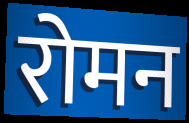
रोमन